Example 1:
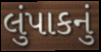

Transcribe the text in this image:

લુંપાકનું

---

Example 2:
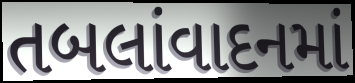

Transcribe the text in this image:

તબલાંવાદનમાં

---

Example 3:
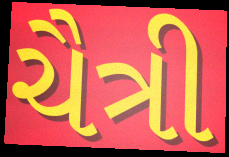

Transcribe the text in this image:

ચૈત્રી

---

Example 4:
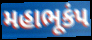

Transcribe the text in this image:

મહાભૂકંપ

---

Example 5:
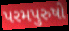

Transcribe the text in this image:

પરમપુરુષો